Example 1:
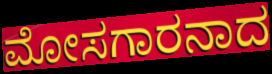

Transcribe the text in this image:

ಮೋಸಗಾರನಾದ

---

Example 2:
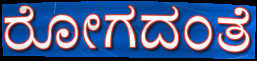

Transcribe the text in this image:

ರೋಗದಂತೆ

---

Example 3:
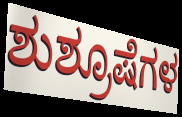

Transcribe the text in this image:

ಶುಶ್ರೂಷೆಗಳ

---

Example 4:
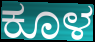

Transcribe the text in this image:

ಕೂಳ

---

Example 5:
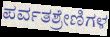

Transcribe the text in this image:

ಪರ್ವತಶ್ರೇಣಿಗಳ